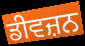
ਡੀਵਜ਼ਨ